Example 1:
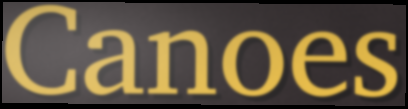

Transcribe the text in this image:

Canoes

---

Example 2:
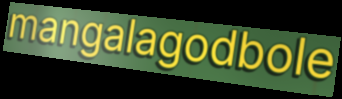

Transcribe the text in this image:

mangalagodbole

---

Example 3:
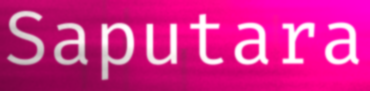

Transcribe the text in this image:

Saputara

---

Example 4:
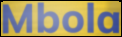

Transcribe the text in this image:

Mbola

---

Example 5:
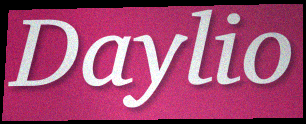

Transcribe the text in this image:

Daylio